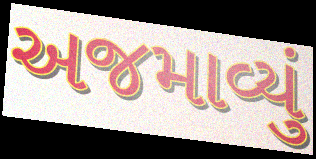
અજમાવ્યું